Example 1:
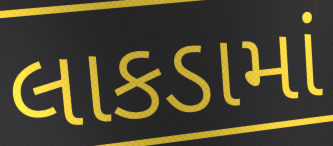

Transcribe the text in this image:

લાકડામાં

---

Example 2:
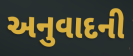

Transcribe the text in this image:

અનુવાદની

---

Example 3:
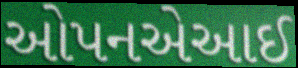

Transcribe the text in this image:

ઓપનએઆઈ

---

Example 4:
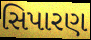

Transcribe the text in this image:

સિપારણ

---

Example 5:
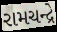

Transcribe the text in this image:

રામચન્દ્રે